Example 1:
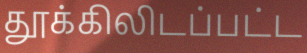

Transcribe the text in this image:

தூக்கிலிடப்பட்ட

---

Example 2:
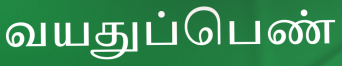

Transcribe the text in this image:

வயதுப்பெண்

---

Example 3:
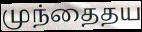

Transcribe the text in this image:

முந்தைதய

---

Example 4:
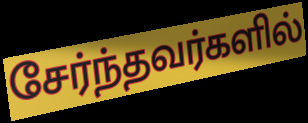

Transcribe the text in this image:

சேர்ந்தவர்களில்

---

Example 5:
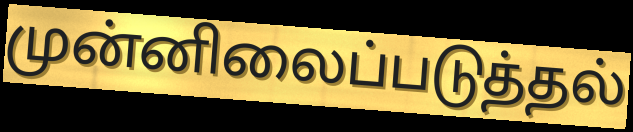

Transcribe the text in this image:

முன்னிலைப்படுத்தல்